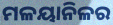
ମଳୟାନିଳର